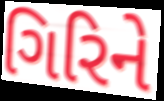
ગિરિને